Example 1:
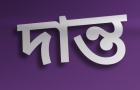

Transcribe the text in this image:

দান্ত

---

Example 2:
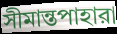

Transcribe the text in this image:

সীমান্তপাহারা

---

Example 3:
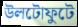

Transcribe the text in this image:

উলটোফুটে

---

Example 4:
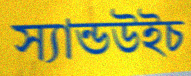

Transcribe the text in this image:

স্যান্ডউইচ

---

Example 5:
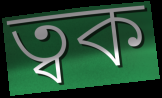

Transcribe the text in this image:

ত্বক